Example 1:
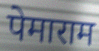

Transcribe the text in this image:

पेमाराम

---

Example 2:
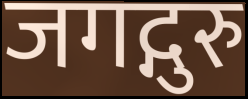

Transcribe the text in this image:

जगद्गुरु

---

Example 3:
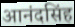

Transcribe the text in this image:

आनंदसिंह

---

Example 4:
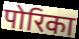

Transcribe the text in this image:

पोरिका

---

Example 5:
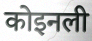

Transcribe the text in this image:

कोइनली